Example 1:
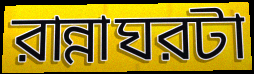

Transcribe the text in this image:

রান্নাঘরটা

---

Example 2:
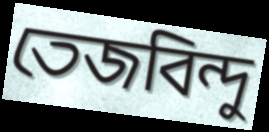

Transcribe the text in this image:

তেজবিন্দু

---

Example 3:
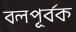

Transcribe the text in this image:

বলপূর্বক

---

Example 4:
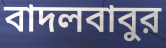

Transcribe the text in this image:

বাদলবাবুর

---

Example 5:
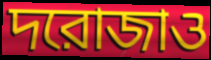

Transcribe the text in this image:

দরোজাও